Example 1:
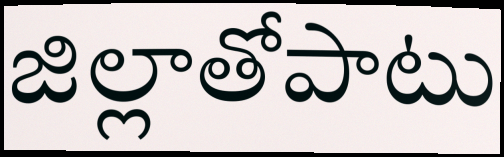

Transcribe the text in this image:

జిల్లాతోపాటు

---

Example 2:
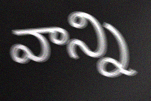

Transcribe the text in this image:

వాన్ని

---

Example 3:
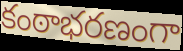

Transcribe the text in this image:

కంఠాభరణంగా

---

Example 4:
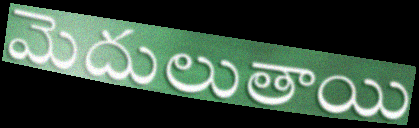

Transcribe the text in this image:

మెదులుతాయి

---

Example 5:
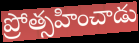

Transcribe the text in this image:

ప్రోత్సహించాడు